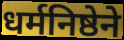
धर्मनिष्ठेने